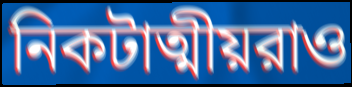
নিকটাত্মীয়রাও